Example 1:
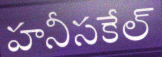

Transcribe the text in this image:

హనీసకేల్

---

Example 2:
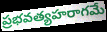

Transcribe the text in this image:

ప్రభవత్యహరాగమే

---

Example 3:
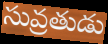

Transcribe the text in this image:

సువ్రతుడు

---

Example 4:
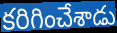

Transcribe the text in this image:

కరిగించేశాడు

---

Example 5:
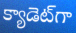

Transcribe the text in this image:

క్యాడెట్‌గా